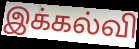
இக்கல்வி